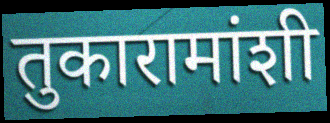
तुकारामांशी